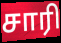
சாரி